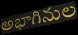
అభాగినుల